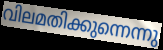
വിലമതിക്കുന്നെന്നു